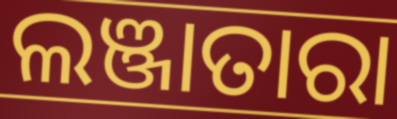
ଲଞ୍ଜାତାରା